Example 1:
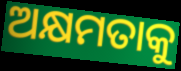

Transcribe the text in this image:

ଅକ୍ଷମତାକୁ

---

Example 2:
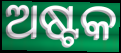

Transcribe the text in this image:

ଅଷ୍ଟକ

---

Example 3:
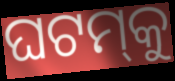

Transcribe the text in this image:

ଘଟମ୍‌କୁ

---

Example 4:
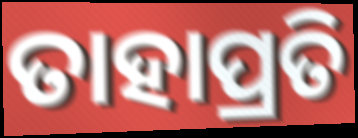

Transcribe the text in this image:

ତାହାପ୍ରତି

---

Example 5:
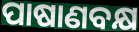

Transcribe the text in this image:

ପାଷାଣବକ୍ଷ